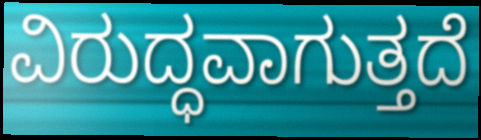
ವಿರುದ್ಧವಾಗುತ್ತದೆ